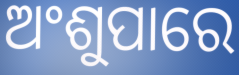
ଅଂଶୁପାରେ